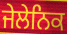
ਜੇਲੇਨਿਕ